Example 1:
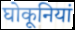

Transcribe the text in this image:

घोकूनियां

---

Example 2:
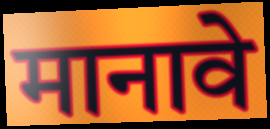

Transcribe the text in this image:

मानावे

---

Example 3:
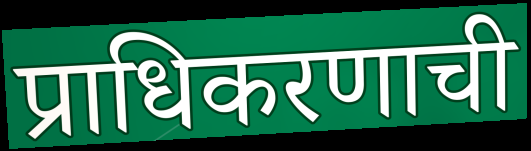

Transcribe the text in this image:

प्राधिकरणाची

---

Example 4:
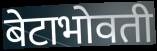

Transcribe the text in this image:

बेटाभोवती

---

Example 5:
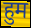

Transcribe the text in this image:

हुम